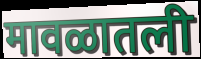
मावळातली